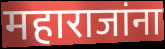
महाराजांना